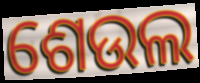
ଶେଉଲ